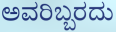
ಅವರಿಬ್ಬರದು